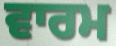
ਵਾਰਮ